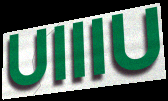
UIIIU